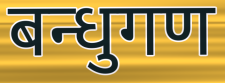
बन्धुगण